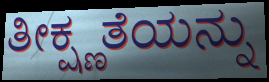
ತೀಕ್ಷ್ಣತೆಯನ್ನು